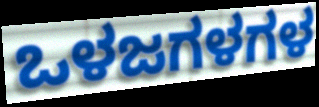
ಒಳಜಗಳಗಳ